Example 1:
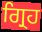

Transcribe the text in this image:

ਗ੍ਰਿਹ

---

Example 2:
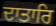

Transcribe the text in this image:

ਦਾਤਾਰਿ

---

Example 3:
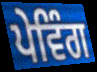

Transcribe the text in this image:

ਪੇਵਿੰਗ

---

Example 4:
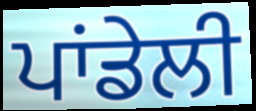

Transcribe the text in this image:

ਪਾਂਡੇਲੀ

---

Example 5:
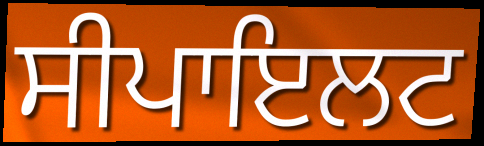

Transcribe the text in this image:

ਸੀਪਾਇਲਟ